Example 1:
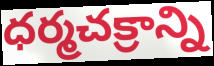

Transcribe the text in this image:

ధర్మచక్రాన్ని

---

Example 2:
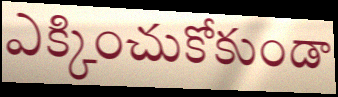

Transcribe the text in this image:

ఎక్కించుకోకుండా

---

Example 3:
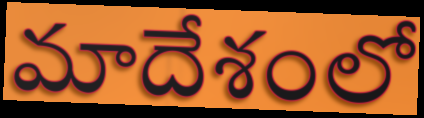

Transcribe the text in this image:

మాదేశంలో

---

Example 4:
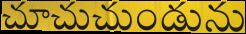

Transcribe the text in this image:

చూచుచుండును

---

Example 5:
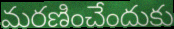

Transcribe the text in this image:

మరణించేందుకు